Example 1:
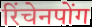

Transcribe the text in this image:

रिंचेनपोंग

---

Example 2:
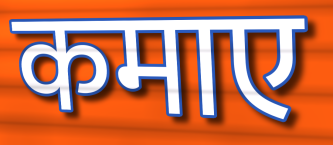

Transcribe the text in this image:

कमाए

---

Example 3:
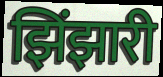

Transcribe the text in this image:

झिंझारी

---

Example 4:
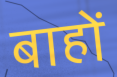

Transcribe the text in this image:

बाहों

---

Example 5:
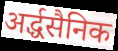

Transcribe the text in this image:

अर्द्धसैनिक